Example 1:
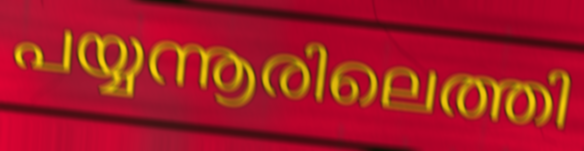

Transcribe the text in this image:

പയ്യന്നൂരിലെത്തി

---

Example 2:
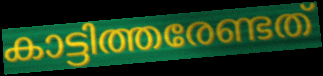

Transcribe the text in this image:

കാട്ടിത്തരേണ്ടത്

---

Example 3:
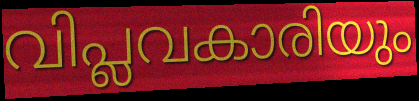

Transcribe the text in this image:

വിപ്ലവകാരിയും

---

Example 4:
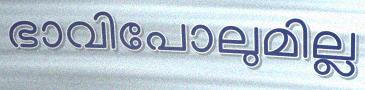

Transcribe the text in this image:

ഭാവിപോലുമില്ല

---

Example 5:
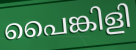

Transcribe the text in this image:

പൈങ്കിളി